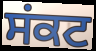
ਸਂਕਟ